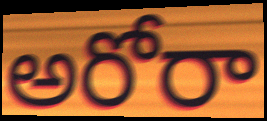
అరోరా